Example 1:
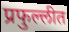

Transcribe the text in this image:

प्रफुल्लीत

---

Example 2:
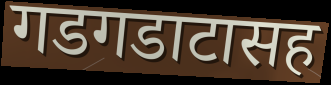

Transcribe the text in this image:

गडगडाटासह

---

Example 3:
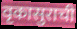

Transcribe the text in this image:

वृकासुराची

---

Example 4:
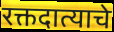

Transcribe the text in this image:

रक्तदात्याचे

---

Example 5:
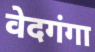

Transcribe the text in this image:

वेदगंगा